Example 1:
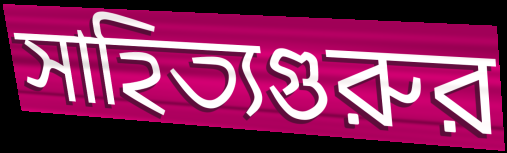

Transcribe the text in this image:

সাহিত্যগুরুর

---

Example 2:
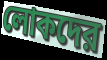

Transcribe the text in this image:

লোকদের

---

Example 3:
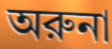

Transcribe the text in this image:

অরুনা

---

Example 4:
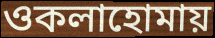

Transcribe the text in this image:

ওকলাহোমায়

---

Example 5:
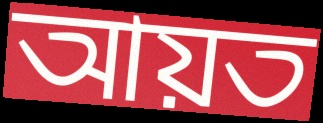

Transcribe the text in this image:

আয়ত